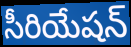
సీరియేషన్